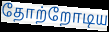
தோற்றோடிய